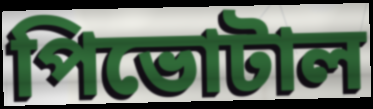
পিভোটাল